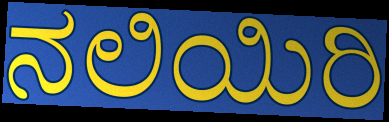
ನಲಿಯಿರಿ